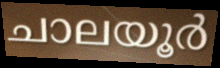
ചാലയൂർ